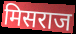
मिसराज